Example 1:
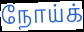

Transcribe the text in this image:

நோய்க்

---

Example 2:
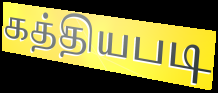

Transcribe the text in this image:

கத்தியபடி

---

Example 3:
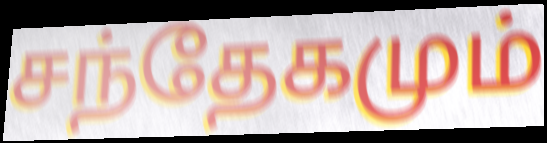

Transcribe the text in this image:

சந்தேகமும்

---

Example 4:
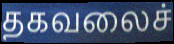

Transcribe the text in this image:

தகவலைச்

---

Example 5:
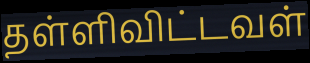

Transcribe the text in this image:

தள்ளிவிட்டவள்